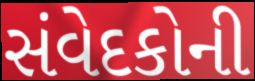
સંવેદકોની